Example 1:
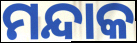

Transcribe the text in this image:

ମନ୍ଦାକ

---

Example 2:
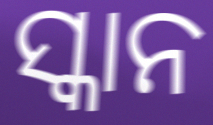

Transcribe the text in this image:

ସ୍କାନ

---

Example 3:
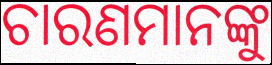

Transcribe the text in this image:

ଚାରଣମାନଙ୍କୁ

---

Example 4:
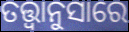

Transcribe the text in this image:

ତତ୍ତ୍ୱାନୁସାରେ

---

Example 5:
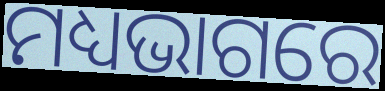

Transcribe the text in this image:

ମଧ୍ୟଭାଗରେ